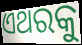
ଏଥରକୁ